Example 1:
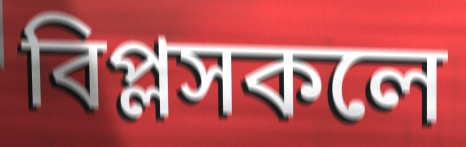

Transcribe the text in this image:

বিপ্লসকলে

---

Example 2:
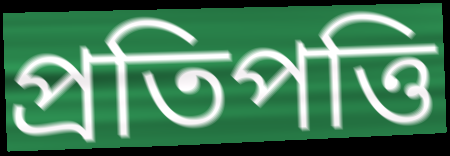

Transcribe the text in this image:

প্ৰতিপত্তি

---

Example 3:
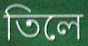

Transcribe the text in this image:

তিলে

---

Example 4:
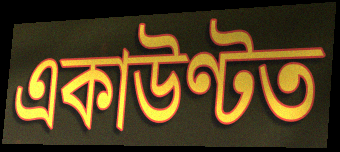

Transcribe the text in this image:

একাউণ্টত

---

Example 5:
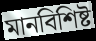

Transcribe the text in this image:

মানবিশিষ্ট